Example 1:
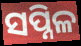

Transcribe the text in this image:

ସପ୍ନିଳ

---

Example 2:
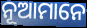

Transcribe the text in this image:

ନୂଆମାନେ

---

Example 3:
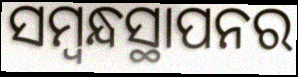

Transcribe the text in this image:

ସମ୍ବନ୍ଧସ୍ଥାପନର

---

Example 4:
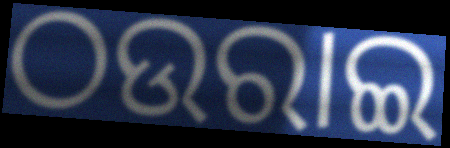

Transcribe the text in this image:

ଠଉରାଇ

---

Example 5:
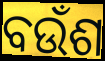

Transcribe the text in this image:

ବଉଁଶ